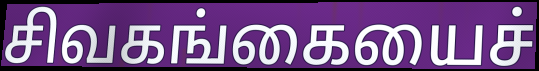
சிவகங்கையைச்